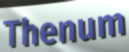
Thenum